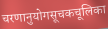
चरणानुयोगसूचकचूलिका